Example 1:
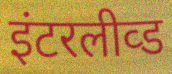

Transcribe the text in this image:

इंटरलीव्ड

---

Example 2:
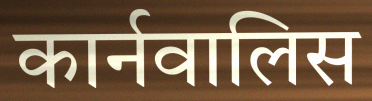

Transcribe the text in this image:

कार्नवालिस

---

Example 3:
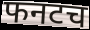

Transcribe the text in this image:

फनटच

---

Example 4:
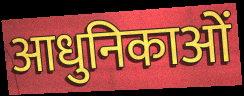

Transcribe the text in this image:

आधुनिकाओं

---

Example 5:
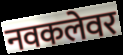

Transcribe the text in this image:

नवकलेवर